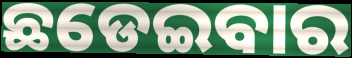
ଛଡେଇବାର